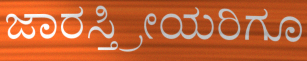
ಜಾರಸ್ತ್ರೀಯರಿಗೂ